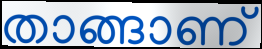
താങ്ങാണ്